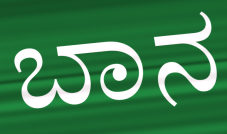
ಬಾನ